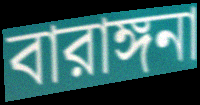
বারাঙ্গনা